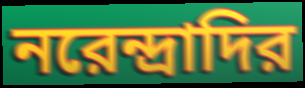
নরেন্দ্রাদির